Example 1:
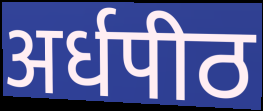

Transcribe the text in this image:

अर्धपीठ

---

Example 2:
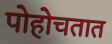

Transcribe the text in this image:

पोहोचतात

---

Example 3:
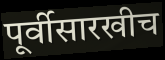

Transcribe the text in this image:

पूर्वीसारखीच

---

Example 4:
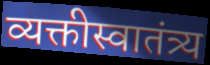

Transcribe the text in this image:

व्यक्तीस्वातंत्र्य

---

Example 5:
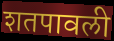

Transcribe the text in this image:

शतपावली